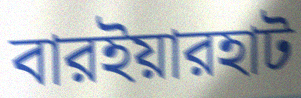
বারইয়ারহাট